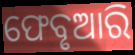
ଫେବୃଆରି